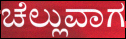
ಚೆಲ್ಲುವಾಗ